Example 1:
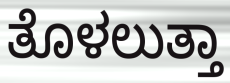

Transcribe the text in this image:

ತೊಳಲುತ್ತಾ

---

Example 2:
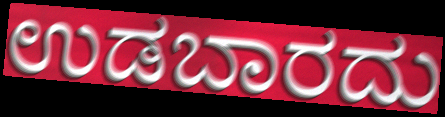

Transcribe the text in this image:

ಉಡಬಾರದು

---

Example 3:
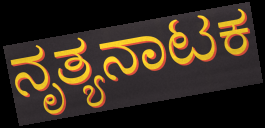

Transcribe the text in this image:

ನೃತ್ಯನಾಟಕ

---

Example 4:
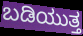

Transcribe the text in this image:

ಬಡಿಯುತ್ತ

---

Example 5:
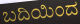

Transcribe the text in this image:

ಬದಿಯಿಂದ